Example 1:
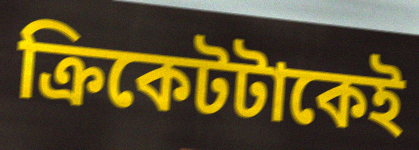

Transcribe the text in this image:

ক্রিকেটটাকেই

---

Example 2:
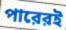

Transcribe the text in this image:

পারেরই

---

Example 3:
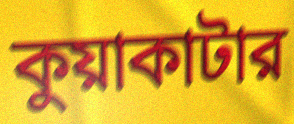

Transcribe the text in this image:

কুয়াকাটার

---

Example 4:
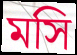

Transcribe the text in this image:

মসি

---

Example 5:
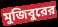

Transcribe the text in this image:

মুজিবুরের